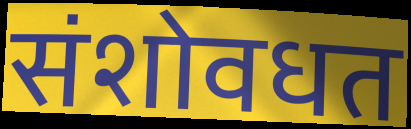
संशोवधत